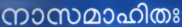
നാസമാഹിതഃ